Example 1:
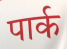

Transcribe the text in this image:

पार्क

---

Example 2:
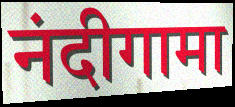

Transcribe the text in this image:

नंदीगामा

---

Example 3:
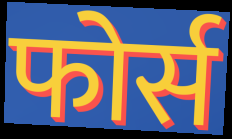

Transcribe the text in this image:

फोर्स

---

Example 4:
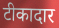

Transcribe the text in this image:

टीकादार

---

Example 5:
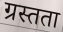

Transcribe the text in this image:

ग्रस्तता